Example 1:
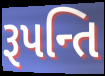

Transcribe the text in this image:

રૂપન્તિ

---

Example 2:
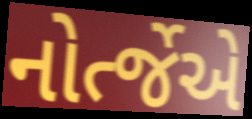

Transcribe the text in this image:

નોર્ત્જેએ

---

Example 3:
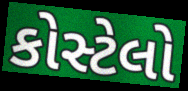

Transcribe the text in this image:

કોસ્ટેલો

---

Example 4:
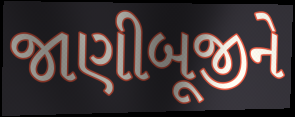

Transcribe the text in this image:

જાણીબૂજીને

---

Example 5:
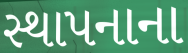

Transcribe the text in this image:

સ્થાપનાના